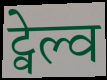
ट्वेल्व